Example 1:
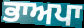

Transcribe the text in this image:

ਭਾਅਪਾ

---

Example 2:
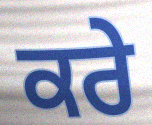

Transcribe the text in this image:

ਕਰੇ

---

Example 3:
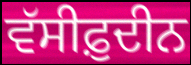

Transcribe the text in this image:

ਵੱਸੀਫ਼ੁਦੀਨ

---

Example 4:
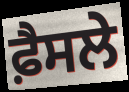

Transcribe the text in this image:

ਫ਼ੈਸਲੇ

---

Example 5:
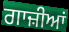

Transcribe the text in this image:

ਗਾਜ਼ੀਆਂ